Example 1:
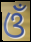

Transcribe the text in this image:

ଓଁ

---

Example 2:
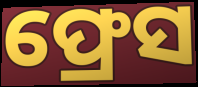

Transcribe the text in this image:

ଫ୍ରେସ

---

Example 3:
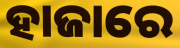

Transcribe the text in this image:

ହାଜାରେ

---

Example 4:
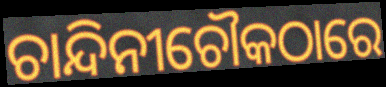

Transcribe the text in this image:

ଚାନ୍ଦିନୀଚୌକଠାରେ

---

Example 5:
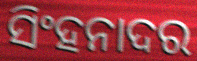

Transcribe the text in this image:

ସିଂହନାଦର